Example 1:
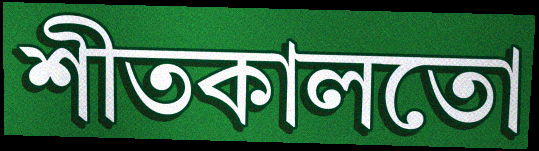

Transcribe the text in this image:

শীতকালতো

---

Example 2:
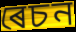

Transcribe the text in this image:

ৰেচন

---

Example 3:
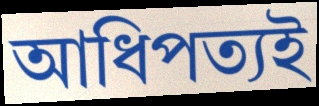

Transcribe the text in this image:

আধিপত্যই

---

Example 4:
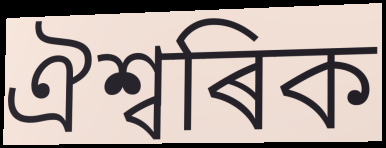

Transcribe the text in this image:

ঐশ্বৰিক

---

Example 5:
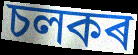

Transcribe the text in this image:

চলকৰ